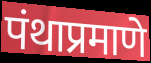
पंथाप्रमाणे